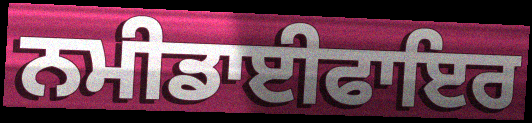
ਨਮੀਡਾਈਫਾਇਰ